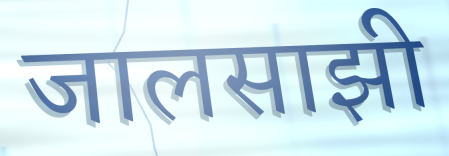
जालसाझी